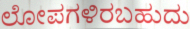
ಲೋಪಗಳಿರಬಹುದು